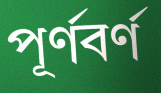
পূর্ণবর্ণ